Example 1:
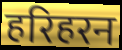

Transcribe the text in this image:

हरिहरन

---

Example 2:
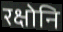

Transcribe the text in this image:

रक्षोनि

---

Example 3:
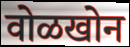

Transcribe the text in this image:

वोळखोन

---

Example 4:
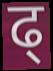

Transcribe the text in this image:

ढ्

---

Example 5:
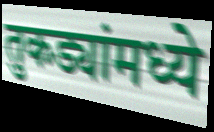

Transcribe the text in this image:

तुकड्यांमध्ये